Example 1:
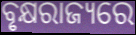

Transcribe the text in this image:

ବୃକ୍ଷରାଜ୍ୟରେ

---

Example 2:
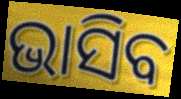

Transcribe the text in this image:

ଭାସିବ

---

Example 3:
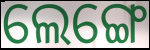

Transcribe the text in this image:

ଲେଙ୍ଗେ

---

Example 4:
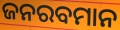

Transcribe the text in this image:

ଜନରବମାନ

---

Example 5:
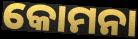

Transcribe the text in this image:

କୋମନା